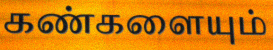
கண்களையும்